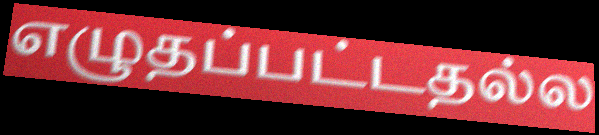
எழுதப்பட்டதல்ல